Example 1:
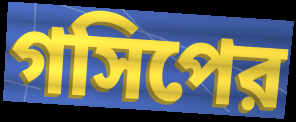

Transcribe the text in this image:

গসিপের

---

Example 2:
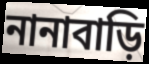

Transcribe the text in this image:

নানাবাড়ি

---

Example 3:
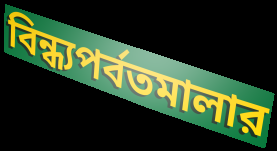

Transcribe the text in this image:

বিন্ধ্যপর্বতমালার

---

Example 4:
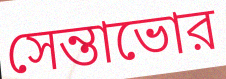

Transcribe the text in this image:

সেন্তাভোর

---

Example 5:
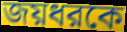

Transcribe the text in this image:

জয়ধরকে